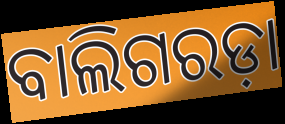
ବାଲିଗରଡ଼ା